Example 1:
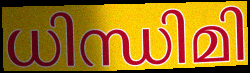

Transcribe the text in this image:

ധിന്ധിമി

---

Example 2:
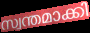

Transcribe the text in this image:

സ്വന്തമാക്കി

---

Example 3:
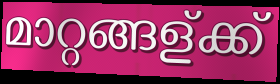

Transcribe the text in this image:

മാറ്റങ്ങള്ക്ക്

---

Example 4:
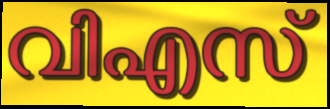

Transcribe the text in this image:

വിഎസ്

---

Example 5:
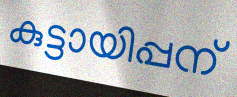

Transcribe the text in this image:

കുട്ടായിപ്പന്